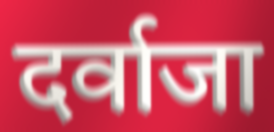
दर्वाजा